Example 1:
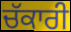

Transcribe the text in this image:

ਚੱਕਾਰੀ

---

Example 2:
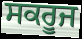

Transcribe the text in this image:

ਸਕਰੂਜ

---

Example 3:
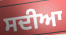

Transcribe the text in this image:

ਸਦੀਆ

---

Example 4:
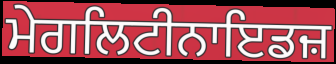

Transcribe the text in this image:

ਮੇਗਲਿਟੀਨਾਇਡਜ਼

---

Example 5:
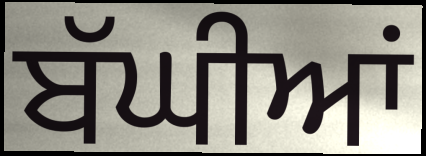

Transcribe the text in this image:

ਬੱਘੀਆਂ